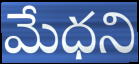
మేధని